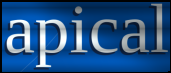
apical